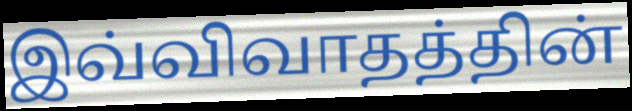
இவ்விவாதத்தின்